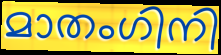
മാതംഗിനി